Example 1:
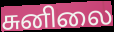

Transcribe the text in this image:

சுனிலை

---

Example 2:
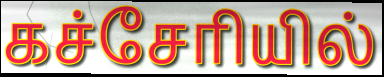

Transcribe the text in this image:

கச்சேரியில்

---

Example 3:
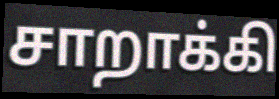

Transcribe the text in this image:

சாறாக்கி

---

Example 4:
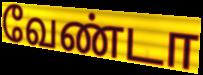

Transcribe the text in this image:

வேண்டா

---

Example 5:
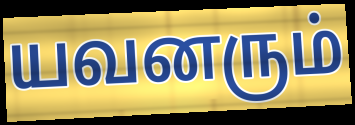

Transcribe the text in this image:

யவனரும்